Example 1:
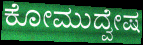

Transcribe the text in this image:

ಕೋಮುದ್ವೇಷ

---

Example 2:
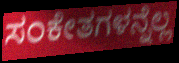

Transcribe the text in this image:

ಸಂಕೇತಗಳನ್ನೆಲ್ಲ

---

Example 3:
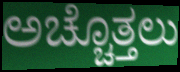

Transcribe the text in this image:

ಅಚ್ಚೊತ್ತಲು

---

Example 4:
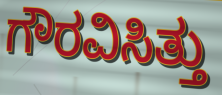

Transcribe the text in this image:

ಗೌರವಿಸಿತ್ತು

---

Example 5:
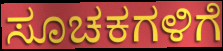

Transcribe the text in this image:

ಸೂಚಕಗಳಿಗೆ